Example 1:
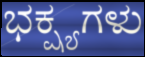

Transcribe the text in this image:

ಭಕ್ಷ್ಯಗಳು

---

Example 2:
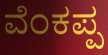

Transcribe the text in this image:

ವೆಂಕಪ್ಪ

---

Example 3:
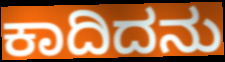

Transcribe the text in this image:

ಕಾದಿದನು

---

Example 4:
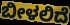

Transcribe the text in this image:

ಬೀಳಲಿದೆ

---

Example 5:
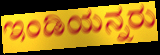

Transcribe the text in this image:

ಇಂಡಿಯನ್ನರು